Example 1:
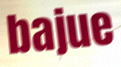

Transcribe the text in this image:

bajue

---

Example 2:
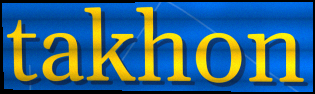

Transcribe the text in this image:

takhon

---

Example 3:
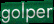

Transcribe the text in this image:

golper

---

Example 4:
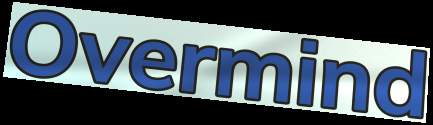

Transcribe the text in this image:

Overmind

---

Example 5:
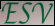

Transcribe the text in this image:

ESV